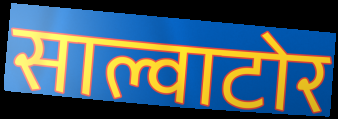
साल्वाटोर